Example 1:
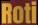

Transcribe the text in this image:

Roti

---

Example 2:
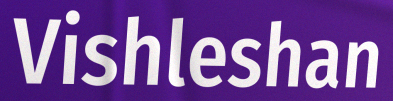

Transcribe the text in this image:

Vishleshan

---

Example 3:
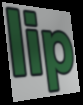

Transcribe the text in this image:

lip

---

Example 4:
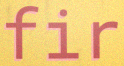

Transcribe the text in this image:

fir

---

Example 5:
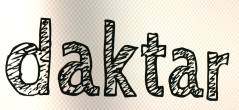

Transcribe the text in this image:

daktar